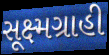
સૂક્ષ્મગ્રાહી